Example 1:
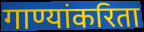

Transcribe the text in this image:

गाण्यांकरिता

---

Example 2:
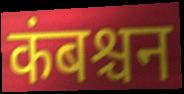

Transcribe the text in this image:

कंबश्चन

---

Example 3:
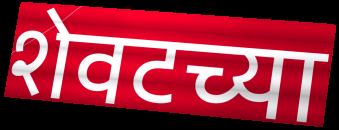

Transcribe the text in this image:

शेवटच्या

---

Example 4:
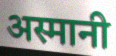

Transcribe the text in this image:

अस्मानी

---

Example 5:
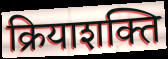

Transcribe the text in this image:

क्रियाशक्ति